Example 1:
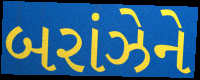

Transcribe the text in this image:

બરાંઝેને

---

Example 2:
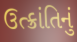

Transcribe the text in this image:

ઉત્ક્રાંતિનું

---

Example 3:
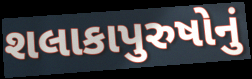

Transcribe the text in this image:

શલાકાપુરુષોનું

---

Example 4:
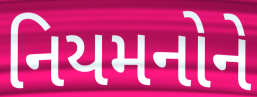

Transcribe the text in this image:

નિયમનોને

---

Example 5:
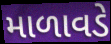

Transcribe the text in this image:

માળાવડે